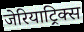
जेरियाट्रिक्स